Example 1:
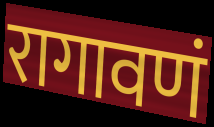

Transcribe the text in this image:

रागावणं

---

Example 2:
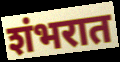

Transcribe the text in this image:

शंभरात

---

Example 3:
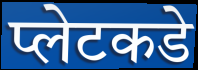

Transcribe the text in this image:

प्लेटकडे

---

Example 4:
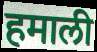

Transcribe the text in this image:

हमाली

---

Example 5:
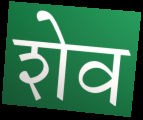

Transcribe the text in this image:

शेव